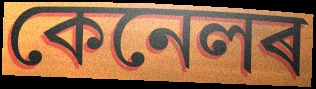
কেনেলৰ